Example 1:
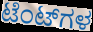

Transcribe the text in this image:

ಟೆಂಟ್‌ಗಳ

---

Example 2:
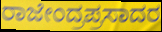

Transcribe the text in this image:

ರಾಜೇಂದ್ರಪ್ರಸಾದರ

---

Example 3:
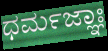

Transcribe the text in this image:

ಧರ್ಮಜ್ಞಾಃ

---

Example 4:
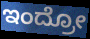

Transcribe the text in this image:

ಇಂದ್ರೋ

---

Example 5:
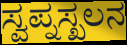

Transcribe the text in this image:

ಸ್ವಪ್ನಸ್ಖಲನ